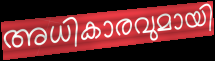
അധികാരവുമായി